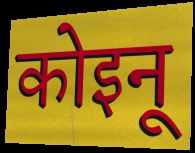
कोइनू